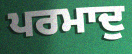
ਪਰਮਾਦੁ